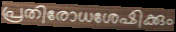
പ്രതിരോധശേഷിക്കും